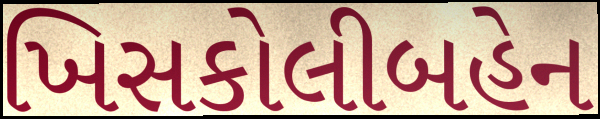
ખિસકોલીબહેન